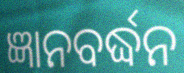
ଜ୍ଞାନବର୍ଦ୍ଧନ